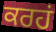
ਕਰਹਂ